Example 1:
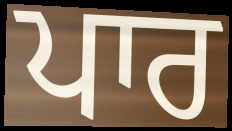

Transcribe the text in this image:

ਪਾਰ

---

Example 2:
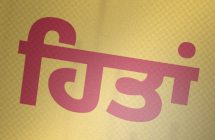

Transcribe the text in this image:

ਹਿਤਾਂ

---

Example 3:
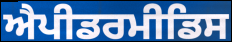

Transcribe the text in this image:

ਐਪੀਡਰਮੀਡਿਸ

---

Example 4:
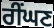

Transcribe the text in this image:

ਰੀਂਘਣ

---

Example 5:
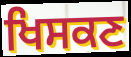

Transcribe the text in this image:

ਖਿਸਕਣ